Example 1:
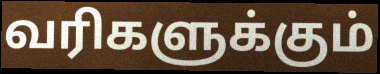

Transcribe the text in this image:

வரிகளுக்கும்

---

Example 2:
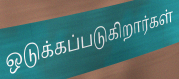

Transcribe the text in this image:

ஒடுக்கப்படுகிறார்கள்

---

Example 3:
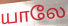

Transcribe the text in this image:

யாலே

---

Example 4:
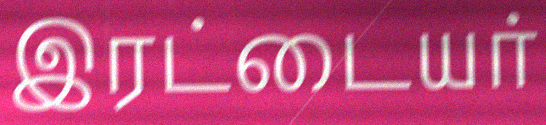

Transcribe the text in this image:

இரட்டையர்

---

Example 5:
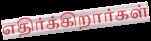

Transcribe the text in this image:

எதிர்க்கிறார்கள்